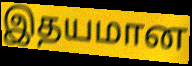
இதயமான